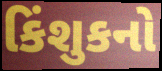
કિંશુકનો